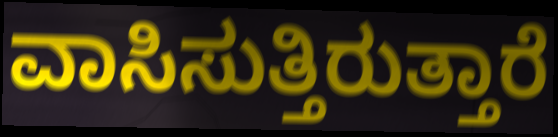
ವಾಸಿಸುತ್ತಿರುತ್ತಾರೆ